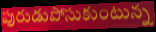
పురుడుపోసుకుంటున్న